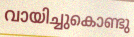
വായിച്ചുകൊണ്ടു